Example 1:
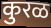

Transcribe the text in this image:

कुरळ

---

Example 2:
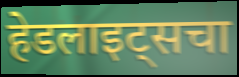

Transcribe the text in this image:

हेडलाइट्सचा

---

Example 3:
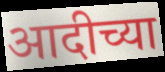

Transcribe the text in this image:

आदीच्या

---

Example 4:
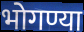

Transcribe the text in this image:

भोगण्या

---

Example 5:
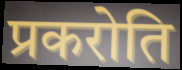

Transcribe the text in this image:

प्रकरोति